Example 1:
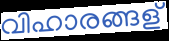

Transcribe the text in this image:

വിഹാരങ്ങള്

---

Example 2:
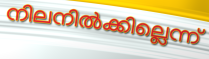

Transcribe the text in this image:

നിലനിൽക്കില്ലെന്ന്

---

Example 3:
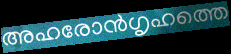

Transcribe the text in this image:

അഹരോൻഗൃഹത്തെ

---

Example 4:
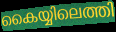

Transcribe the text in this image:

കൈയ്യിലെത്തി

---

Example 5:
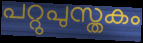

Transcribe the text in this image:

പറ്റുപുസ്തകം